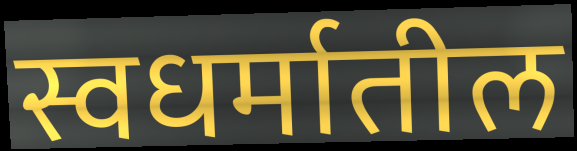
स्वधर्मातील